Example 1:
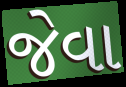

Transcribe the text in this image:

જેવા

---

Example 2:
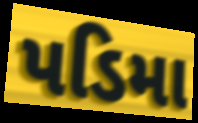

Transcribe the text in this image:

પડિમા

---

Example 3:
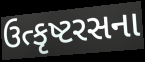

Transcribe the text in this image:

ઉત્કૃષ્ટરસના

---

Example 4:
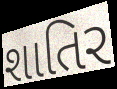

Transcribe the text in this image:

શાતિર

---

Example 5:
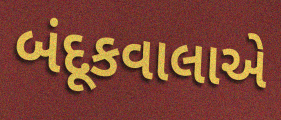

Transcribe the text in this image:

બંદૂકવાલાએ